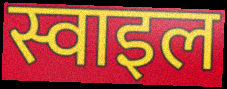
स्वाइल